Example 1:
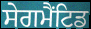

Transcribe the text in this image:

ਸੇਗਮੈਂਟਿਡ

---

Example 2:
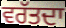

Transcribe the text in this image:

ਵਰੱਤਦਾ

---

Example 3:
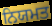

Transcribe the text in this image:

ਨਿਯਮਤ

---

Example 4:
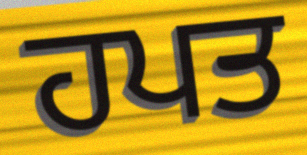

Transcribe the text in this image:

ਹਪਤ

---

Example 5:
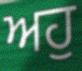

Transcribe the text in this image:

ਅਹੁ